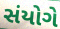
સંયોગે